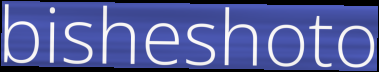
bisheshoto